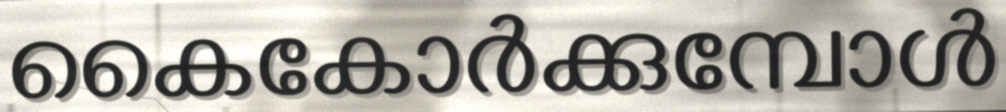
കൈകോർക്കുമ്പോൾ